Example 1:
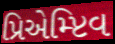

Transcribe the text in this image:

પ્રિએમ્પ્ટિવ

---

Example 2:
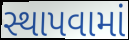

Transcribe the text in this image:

સ્થાપવામાં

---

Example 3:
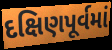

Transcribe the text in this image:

દક્ષિણપૂર્વમાં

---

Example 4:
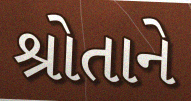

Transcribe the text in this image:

શ્રોતાને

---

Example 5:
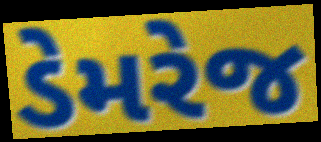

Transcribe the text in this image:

ડેમરેજ